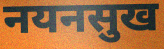
नयनसुख